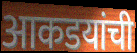
आकडयांची